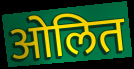
ओलित